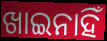
ଖାଇନାହିଁ